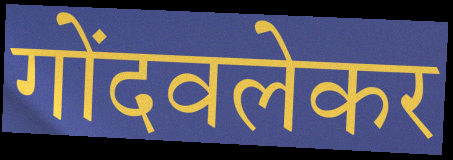
गोंदवलेकर